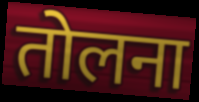
तोलना